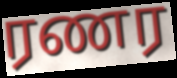
ரணர